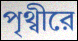
পৃথ্বীরে